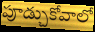
పూడ్చుకోవాలో